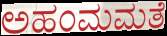
ಅಹಂಮಮತೆ